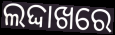
ଲଦ୍ଦାଖରେ